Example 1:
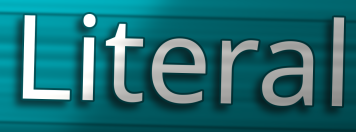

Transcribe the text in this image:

Literal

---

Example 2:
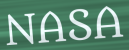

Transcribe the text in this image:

NASA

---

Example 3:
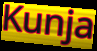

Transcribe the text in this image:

Kunja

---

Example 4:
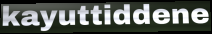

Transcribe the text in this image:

kayuttiddene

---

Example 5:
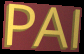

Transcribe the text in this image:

PAI